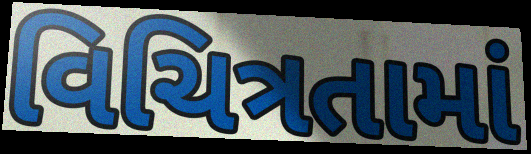
વિચિત્રતામાં